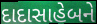
દાદાસાહેબને